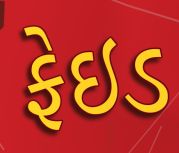
ફેઇડ